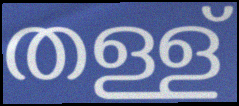
തള്ള്